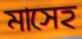
মাসেহ